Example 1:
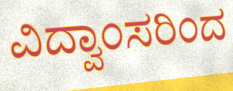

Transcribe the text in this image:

ವಿದ್ವಾಂಸರಿಂದ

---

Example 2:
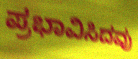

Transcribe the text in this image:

ಪ್ರಭಾವಿಸಿದವು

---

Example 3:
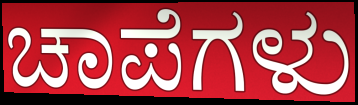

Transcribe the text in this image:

ಚಾಪೆಗಳು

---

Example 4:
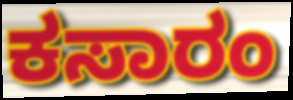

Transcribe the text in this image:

ಕಸಾರಂ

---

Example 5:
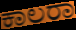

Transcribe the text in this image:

ಕಾಲರಾ